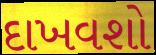
દાખવશો